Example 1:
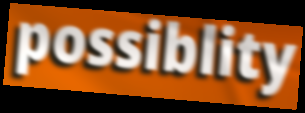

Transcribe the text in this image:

possiblity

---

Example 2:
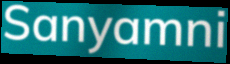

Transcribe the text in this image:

Sanyamni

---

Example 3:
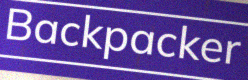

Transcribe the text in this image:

Backpacker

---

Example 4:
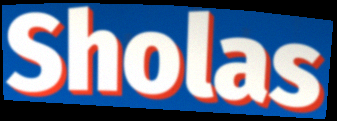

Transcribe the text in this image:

Sholas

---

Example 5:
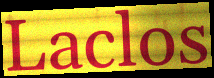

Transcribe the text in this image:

Laclos